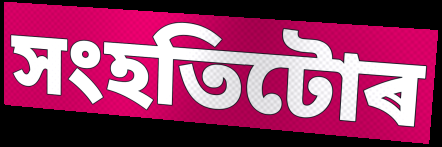
সংহতিটোৰ